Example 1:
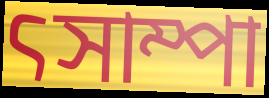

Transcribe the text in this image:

ৎসাম্পা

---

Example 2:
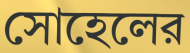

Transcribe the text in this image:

সোহেলের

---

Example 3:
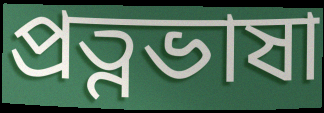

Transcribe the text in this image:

প্রত্নভাষা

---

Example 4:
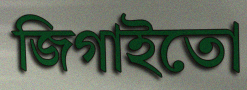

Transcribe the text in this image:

জিগাইতো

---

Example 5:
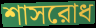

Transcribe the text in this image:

শাসরোধ